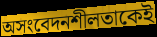
অসংবেদনশীলতাকেই